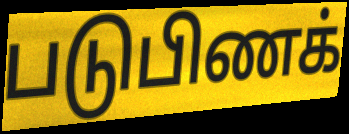
படுபிணக்